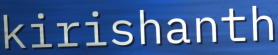
kirishanth